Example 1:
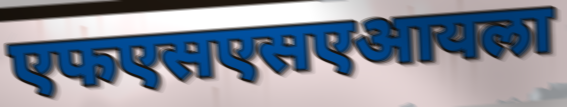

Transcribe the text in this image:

एफएसएसएआयला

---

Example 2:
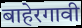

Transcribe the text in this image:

बाहेरगावी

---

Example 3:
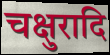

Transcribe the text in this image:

चक्षुरादि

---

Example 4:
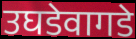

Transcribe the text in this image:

उघडेवागडे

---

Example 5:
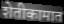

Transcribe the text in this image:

शेतीकामात